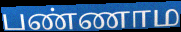
பண்ணாம